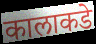
कालाकडे